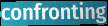
confronting